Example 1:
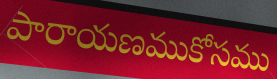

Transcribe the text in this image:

పారాయణముకోసము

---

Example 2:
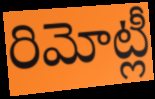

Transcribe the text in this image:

రిమోట్లీ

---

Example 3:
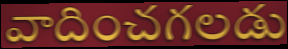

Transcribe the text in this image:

వాదించగలడు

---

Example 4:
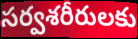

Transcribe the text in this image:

సర్వశరీరులకు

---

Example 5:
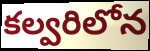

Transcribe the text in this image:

కల్వరిలోన